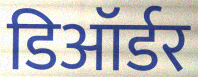
डिऑर्डर